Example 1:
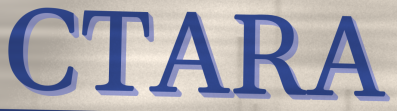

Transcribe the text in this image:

CTARA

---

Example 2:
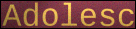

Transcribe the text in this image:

Adolesc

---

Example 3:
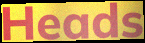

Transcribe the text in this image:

Heads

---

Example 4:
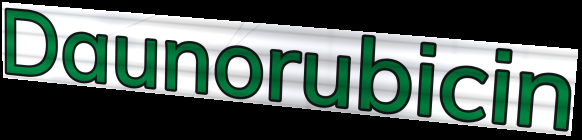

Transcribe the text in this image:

Daunorubicin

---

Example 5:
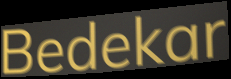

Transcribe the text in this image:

Bedekar